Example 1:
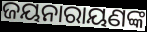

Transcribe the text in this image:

ଜୟନାରାୟଣଙ୍କ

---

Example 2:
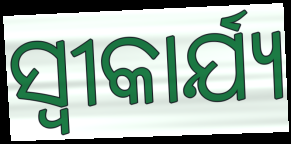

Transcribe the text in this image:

ସ୍ଵୀକାର୍ଯ୍ୟ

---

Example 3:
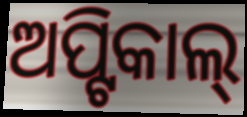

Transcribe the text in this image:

ଅପ୍ଟିକାଲ୍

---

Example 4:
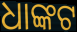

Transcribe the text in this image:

ଧାଙ୍କଟ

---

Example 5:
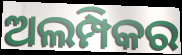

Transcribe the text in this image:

ଅଲମ୍ପିକର